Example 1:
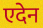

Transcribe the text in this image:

एदेन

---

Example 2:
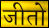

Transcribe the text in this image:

जीतो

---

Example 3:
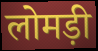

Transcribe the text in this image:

लोमड़ी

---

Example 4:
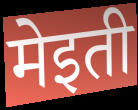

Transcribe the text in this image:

मेइती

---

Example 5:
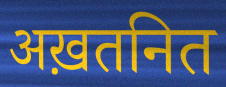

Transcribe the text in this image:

अख़तनित